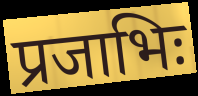
प्रजाभिः